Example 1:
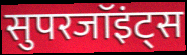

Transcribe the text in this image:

सुपरजॉइंट्स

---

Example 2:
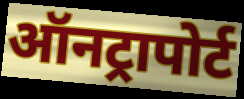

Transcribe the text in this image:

ऑनट्रापोर्ट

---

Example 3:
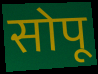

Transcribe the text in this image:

सोपू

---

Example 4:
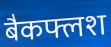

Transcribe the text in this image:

बैकफ्लश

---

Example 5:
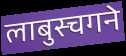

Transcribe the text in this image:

लाबुस्चगने